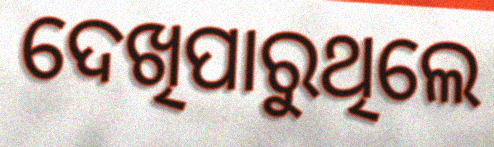
ଦେଖିପାରୁଥିଲେ